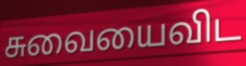
சுவையைவிட